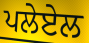
ਪਲੇਏਲ